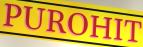
PUROHIT